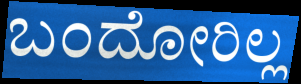
ಬಂದೋರಿಲ್ಲ